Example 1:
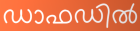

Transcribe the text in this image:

ഡാഫഡിൽ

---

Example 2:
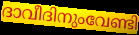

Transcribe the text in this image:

ദാവീദിനുംവേണ്ടി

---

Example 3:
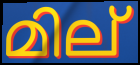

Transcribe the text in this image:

മില്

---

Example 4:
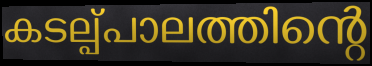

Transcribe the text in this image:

കടല്പ്പാലത്തിന്റെ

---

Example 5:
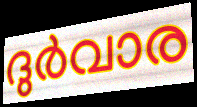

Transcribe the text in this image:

ദുർവാര